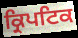
ਕ੍ਰਿਪਟਿਕ